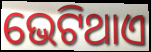
ଭେଟିଥାଏ